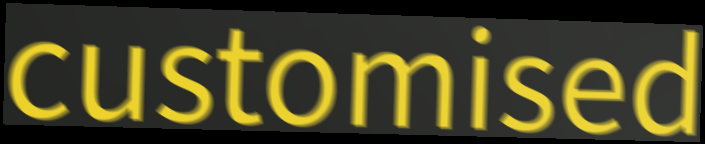
customised